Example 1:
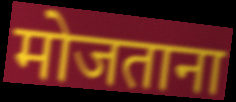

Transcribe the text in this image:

मोजताना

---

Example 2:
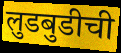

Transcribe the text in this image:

लुडबुडीची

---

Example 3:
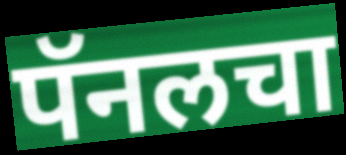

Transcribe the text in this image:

पॅनलचा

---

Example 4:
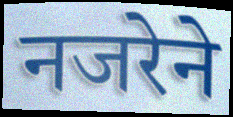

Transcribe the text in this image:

नजरेने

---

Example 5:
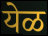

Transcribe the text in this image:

येळ